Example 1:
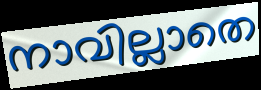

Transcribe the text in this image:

നാവില്ലാതെ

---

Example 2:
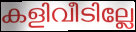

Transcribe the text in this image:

കളിവീടില്ലേ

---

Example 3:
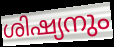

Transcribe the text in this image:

ശിഷ്യനും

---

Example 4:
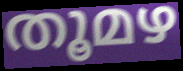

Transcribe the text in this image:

തൂമഴ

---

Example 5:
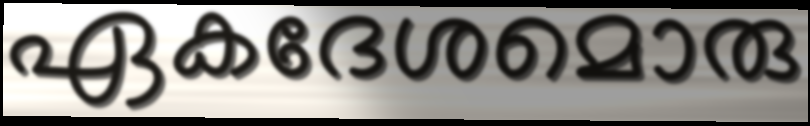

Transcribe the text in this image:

ഏകദേശമൊരു